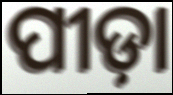
ପୀଡ଼ା